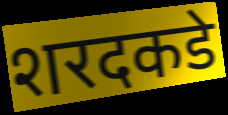
शरदकडे